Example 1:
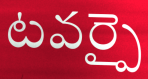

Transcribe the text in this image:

టవర్పై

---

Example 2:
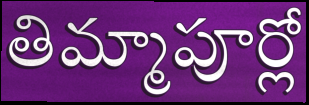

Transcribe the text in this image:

తిమ్మాపూర్లో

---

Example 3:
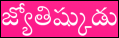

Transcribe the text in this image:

జ్యోతిష్కుడు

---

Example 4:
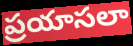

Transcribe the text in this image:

ప్రయాసలా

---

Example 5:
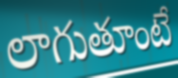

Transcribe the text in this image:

లాగుతూంటే